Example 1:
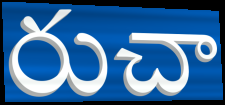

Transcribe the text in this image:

రుచా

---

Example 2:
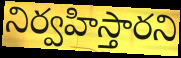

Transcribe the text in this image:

నిర్వహిస్తారని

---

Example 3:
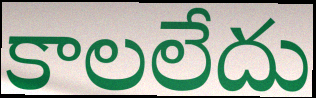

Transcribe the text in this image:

కాలలేదు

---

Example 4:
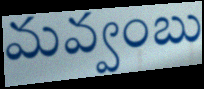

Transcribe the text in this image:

మవ్వంబు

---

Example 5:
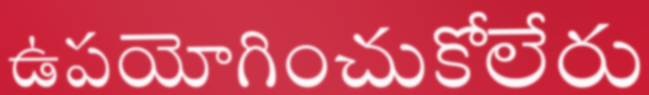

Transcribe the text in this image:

ఉపయోగించుకోలేరు